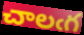
చాలఁగ